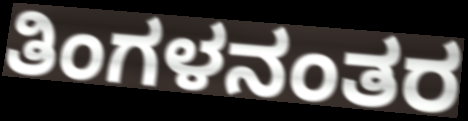
ತಿಂಗಳನಂತರ